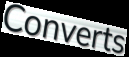
Converts